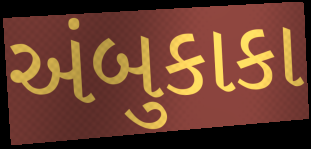
અંબુકાકા